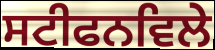
ਸਟੀਫਨਵਿਲੇ